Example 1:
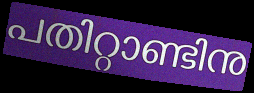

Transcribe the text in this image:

പതിറ്റാണ്ടിനു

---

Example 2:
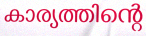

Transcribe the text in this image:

കാര്യത്തിന്റെ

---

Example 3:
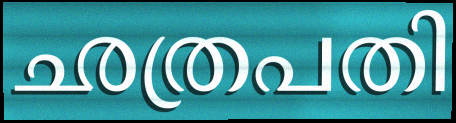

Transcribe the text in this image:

ഛത്രപതി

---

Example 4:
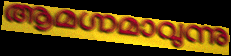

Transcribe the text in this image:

ആമഗ്നമാവുന്നു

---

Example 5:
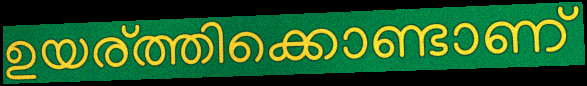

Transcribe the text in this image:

ഉയര്ത്തിക്കൊണ്ടാണ്